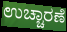
ಉಚ್ಚಾರಣೆ